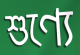
শুণ্যে